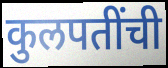
कुलपतींची